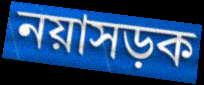
নয়াসড়ক